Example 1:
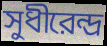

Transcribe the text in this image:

সুধীরেন্দ্র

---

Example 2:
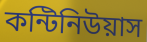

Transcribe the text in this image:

কন্টিনিউয়াস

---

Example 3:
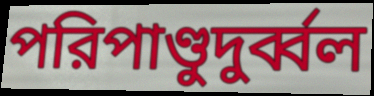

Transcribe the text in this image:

পরিপাণ্ডুদুর্ব্বল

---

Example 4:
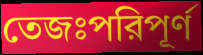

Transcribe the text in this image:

তেজঃপরিপূর্ণ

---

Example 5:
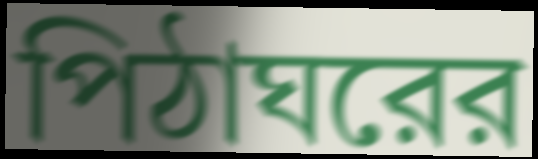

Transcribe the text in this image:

পিঠাঘরের